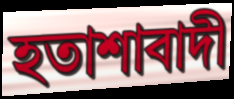
হতাশাবাদী